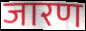
जारण